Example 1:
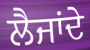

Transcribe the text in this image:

ਲੈਜਾਂਦੇ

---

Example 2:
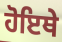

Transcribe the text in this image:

ਹੋਇਥੇ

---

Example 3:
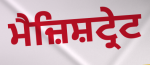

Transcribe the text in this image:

ਮੈਜ਼ਿਸ਼ਟ੍ਰੇਟ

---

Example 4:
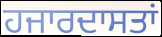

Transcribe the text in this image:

ਹਜਾਰਦਾਸਤਾਂ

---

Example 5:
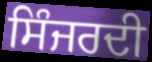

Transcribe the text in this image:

ਸਿੰਜਰਦੀ